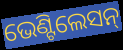
ଭେଣ୍ଟିଲେସନ୍